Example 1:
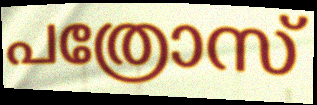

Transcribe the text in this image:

പത്രോസ്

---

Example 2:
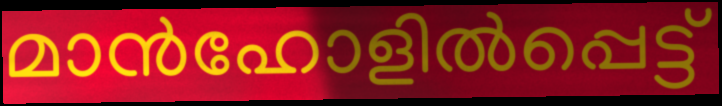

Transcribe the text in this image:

മാൻഹോളിൽപ്പെട്ട്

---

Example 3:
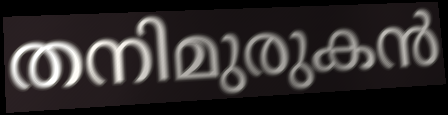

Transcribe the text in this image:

തനിമുരുകൻ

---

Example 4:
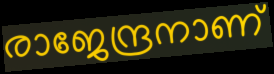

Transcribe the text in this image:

രാജേന്ദ്രനാണ്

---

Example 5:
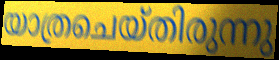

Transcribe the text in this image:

യാത്രചെയ്തിരുന്നു